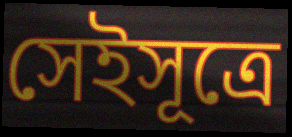
সেইসূত্রে